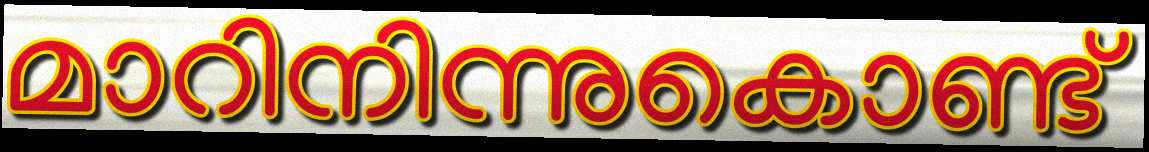
മാറിനിന്നുകൊണ്ട്